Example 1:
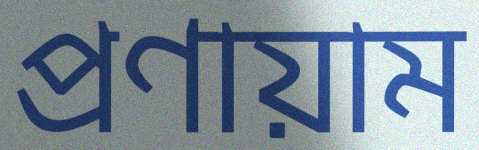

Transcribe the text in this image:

প্রণায়াম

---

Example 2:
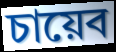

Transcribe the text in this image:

চায়েব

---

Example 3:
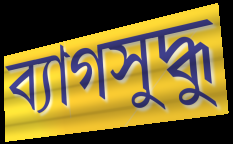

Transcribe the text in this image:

ব্যাগসুদ্ধু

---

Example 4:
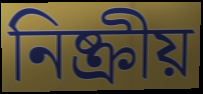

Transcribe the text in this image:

নিষ্ক্রীয়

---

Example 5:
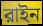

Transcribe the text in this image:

রাইন